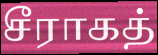
சீராகத்